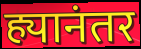
ह्यानंतर